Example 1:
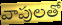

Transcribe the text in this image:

వాపులతో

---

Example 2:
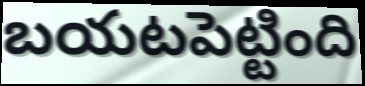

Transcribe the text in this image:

బయటపెట్టింది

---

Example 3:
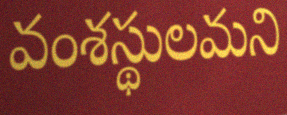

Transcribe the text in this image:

వంశస్థులమని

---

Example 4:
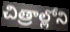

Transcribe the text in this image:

చిత్రాల్లోని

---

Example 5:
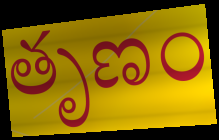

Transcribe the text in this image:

తృణం